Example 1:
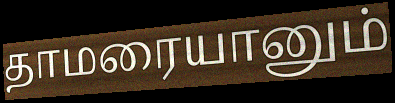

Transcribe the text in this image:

தாமரையானும்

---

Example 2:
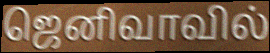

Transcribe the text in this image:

ஜெனிவாவில்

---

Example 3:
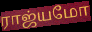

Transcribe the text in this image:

ராஜ்யமோ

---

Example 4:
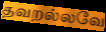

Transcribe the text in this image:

தவறல்லவே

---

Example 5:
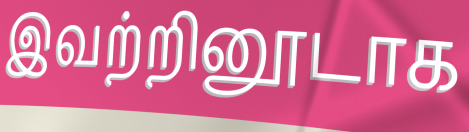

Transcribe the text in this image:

இவற்றினூடாக